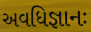
અવધિજ્ઞાનઃ